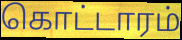
கொட்டாரம்